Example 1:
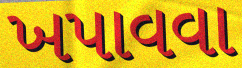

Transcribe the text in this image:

ખપાવવા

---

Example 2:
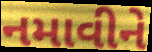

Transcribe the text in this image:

નમાવીને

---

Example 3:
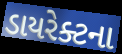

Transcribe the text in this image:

ડાયરેક્ટના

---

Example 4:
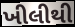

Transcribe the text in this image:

ખીલીથી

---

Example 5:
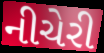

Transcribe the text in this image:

નીચેરી